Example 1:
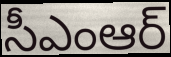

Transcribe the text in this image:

సీఎంఆర్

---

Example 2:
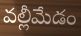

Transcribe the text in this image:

వల్లీమేడం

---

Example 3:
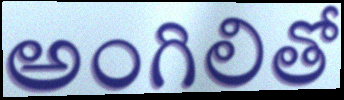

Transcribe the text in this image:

అంగిలితో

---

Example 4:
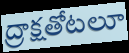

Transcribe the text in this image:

ద్రాక్షతోటలూ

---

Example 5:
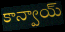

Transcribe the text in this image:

కాన్వాయ్